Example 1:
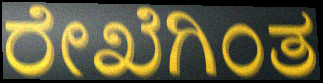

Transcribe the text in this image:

ರೇಖೆಗಿಂತ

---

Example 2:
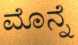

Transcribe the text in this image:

ಮೊನ್ನೆ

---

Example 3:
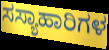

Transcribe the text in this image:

ಸಸ್ಯಾಹಾರಿಗಳ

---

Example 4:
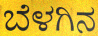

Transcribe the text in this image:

ಬೆಳಗಿನ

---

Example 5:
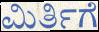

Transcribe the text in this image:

ಮಿರ್ತಿಗೆ